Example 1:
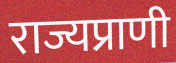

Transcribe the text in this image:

राज्यप्राणी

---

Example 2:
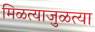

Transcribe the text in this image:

मिळत्याजुळत्या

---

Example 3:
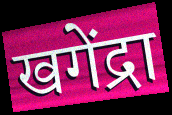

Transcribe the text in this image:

खगेंद्रा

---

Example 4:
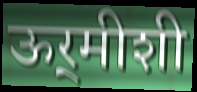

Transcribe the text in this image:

ऊर्मीशी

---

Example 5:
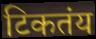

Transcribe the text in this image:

टिकतंय